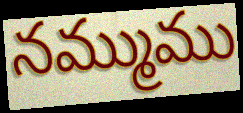
నమ్ముము